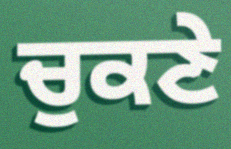
ਚੁਕਣੇ